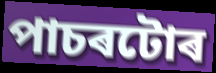
পাচৰটোৰ